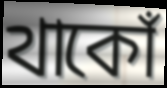
থাকোঁ